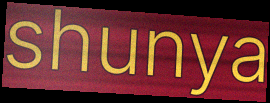
shunya